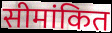
सीमांकित